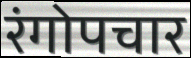
रंगोपचार